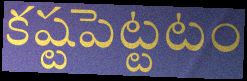
కష్టపెట్టటం